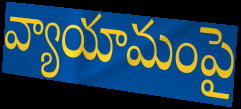
వ్యాయామంపై